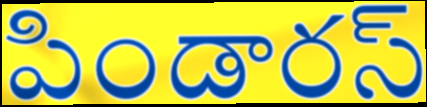
పిండారస్